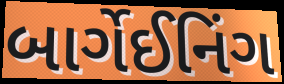
બાર્ગેઈનિંગ